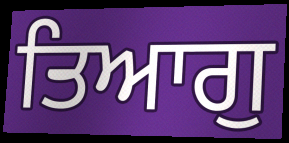
ਤਿਆਗੁ